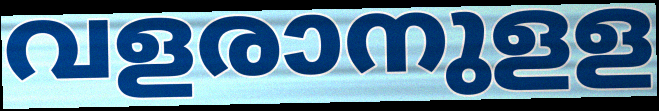
വളരാനുളള